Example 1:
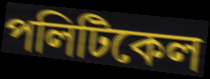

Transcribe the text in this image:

পলিটিকেল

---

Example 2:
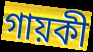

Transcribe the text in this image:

গায়কী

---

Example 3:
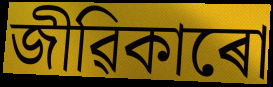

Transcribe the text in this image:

জীৱিকাৰো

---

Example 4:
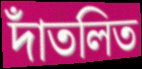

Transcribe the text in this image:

দাঁতলিত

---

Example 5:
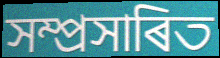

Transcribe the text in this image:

সম্প্ৰসাৰিত